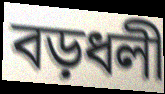
বড়ধলী